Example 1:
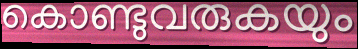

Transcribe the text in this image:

കൊണ്ടുവരുകയും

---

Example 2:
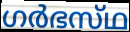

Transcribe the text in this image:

ഗർഭസ്‌ഥ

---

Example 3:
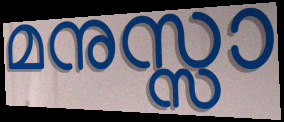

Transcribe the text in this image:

മനുസ്സാ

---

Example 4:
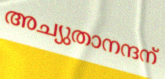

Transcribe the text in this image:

അച്യുതാനന്ദന്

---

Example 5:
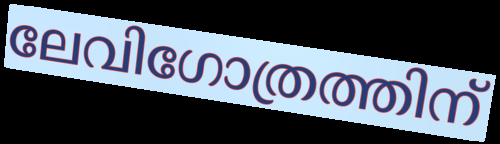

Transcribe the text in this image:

ലേവിഗോത്രത്തിന്